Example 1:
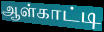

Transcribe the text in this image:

ஆள்காட்டி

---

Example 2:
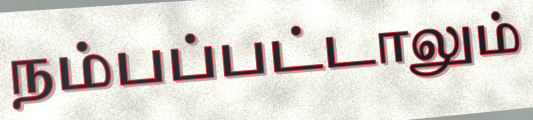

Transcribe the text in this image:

நம்பப்பட்டாலும்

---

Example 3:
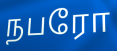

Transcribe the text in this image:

நபரோ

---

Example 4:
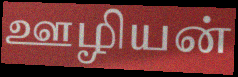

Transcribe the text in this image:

ஊழியன்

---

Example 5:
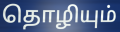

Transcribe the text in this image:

தொழியும்